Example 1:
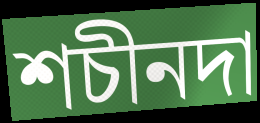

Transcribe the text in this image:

শচীনদা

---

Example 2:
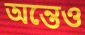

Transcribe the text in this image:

অন্তেও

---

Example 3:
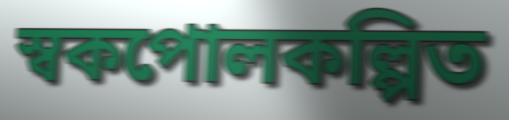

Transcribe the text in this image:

স্বকপোলকল্পিত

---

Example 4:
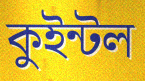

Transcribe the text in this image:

কুইন্টল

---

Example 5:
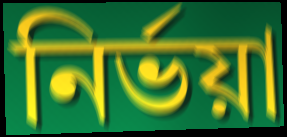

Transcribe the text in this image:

নির্ভয়া